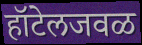
हॉटेलजवळ